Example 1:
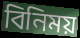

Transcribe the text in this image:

বিনিময়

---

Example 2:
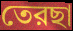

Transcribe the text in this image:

তেরছা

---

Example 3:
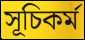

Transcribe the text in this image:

সূচিকর্ম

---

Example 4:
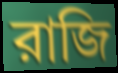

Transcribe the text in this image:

রাজি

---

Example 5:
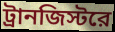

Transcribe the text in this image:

ট্রানজিস্টরে